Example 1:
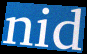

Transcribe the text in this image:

nid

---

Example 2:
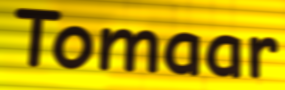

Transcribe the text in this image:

Tomaar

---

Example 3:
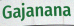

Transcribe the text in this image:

Gajanana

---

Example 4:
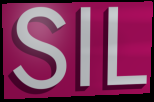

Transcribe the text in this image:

SIL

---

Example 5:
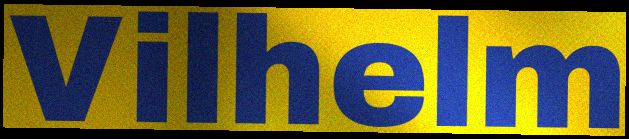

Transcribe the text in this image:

Vilhelm